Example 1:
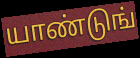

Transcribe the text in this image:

யாண்டுங்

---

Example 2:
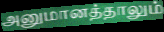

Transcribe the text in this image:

அனுமானத்தாலும்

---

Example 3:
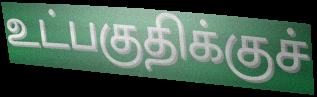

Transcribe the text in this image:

உட்பகுதிக்குச்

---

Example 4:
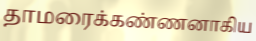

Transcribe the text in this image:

தாமரைக்கண்ணனாகிய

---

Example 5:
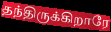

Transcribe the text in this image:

தந்திருக்கிறாரே